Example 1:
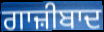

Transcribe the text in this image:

ਗਾਜ਼ੀਬਾਦ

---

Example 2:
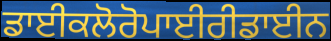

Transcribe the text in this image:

ਡਾਈਕਲੋਰੋਪਾਈਰੀਡਾਈਨ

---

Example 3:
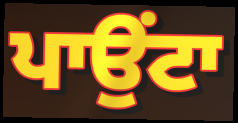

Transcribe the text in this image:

ਪਾਉੰਟਾ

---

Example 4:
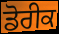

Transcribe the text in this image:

ਡੋਰੀਕ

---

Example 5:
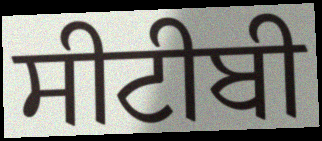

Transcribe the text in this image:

ਸੀਟੀਬੀ